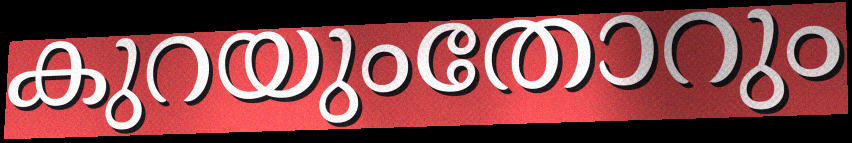
കുറയുംതോറും